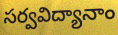
సర్వవిద్యానాం